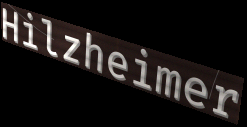
Hilzheimer